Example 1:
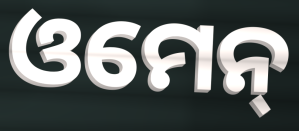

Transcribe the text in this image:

ଓମେନ୍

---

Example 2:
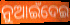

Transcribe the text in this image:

ନୁଆଇଁଦେଇ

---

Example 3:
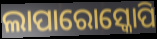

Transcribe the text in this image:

ଲାପାରୋସ୍କୋପି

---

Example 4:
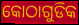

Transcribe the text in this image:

କୋଠାଗୁଡିକ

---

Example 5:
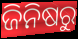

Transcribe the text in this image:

ଜିନିଷରୁ